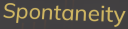
Spontaneity